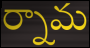
ర్నామ